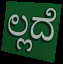
ಲ್ಲದೆ